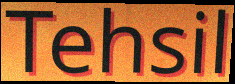
Tehsil